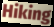
Hiking